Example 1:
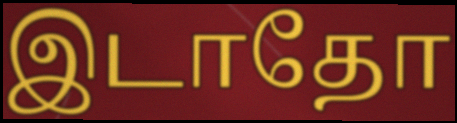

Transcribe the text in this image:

இடாதோ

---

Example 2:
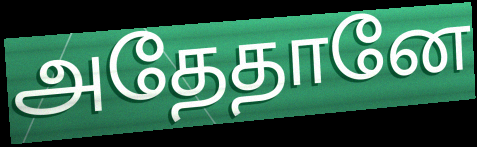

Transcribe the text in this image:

அதேதானே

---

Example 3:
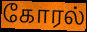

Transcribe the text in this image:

கோரல்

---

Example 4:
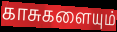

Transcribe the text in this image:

காசுகளையும்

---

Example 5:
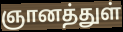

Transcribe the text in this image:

ஞானத்துள்